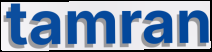
tamran